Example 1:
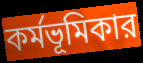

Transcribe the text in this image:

কর্মভূমিকার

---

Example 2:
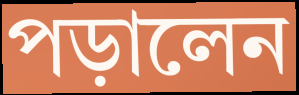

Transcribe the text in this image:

পড়ালেন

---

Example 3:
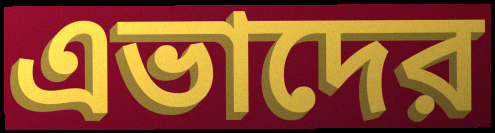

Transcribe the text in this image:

এভাদের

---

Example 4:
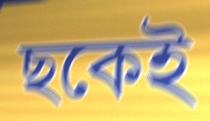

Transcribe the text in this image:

ছকেই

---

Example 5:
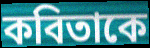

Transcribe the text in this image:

কবিতাকে